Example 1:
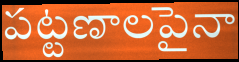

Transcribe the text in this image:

పట్టణాలపైనా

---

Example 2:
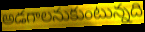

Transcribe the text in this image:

అడగాలనుకుంటున్నది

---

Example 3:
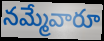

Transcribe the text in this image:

నమ్మేవారూ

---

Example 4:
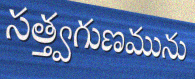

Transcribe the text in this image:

సత్త్వగుణమును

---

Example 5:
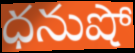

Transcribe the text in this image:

ధనుషో